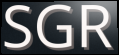
SGR